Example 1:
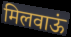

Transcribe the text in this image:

मिलवाऊं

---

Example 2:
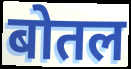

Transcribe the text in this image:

बोतल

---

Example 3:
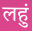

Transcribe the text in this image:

लहुं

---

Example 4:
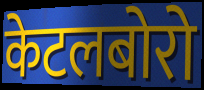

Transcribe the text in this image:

केटलबोरो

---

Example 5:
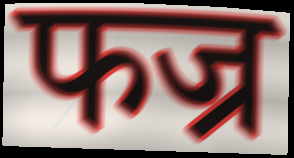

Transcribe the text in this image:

फज्र